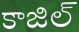
కాజిల్